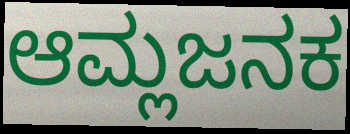
ಆಮ್ಲಜನಕ